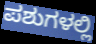
ಪಶುಗಳಲ್ಲಿ